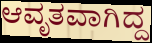
ಆವೃತವಾಗಿದ್ದ